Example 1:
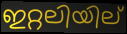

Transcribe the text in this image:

ഇറ്റലിയില്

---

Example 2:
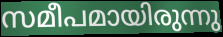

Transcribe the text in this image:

സമീപമായിരുന്നു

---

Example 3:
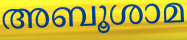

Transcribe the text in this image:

അബൂശാമ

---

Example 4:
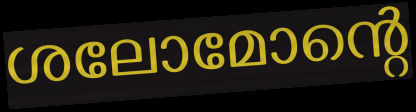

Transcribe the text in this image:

ശലോമോന്റെ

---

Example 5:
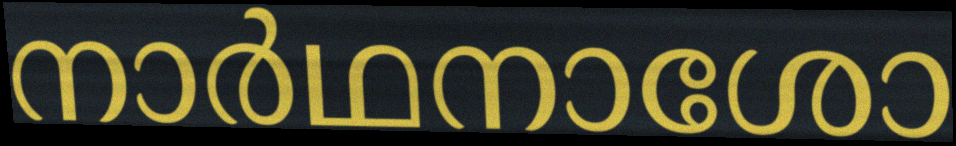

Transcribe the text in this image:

നാർഥനാശോ